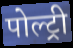
पोल्ट्री